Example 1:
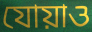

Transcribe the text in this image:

যোয়াও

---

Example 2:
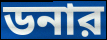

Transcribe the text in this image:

ডনার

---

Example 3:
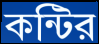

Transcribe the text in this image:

কন্টির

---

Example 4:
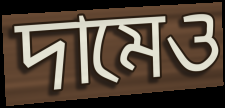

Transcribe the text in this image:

দামেও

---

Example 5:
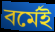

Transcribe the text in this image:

বর্মেই